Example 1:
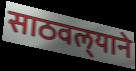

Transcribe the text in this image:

साठवल्याने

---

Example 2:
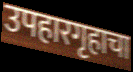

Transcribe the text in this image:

उपहारगृहाचा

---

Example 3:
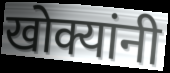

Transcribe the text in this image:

खोक्यांनी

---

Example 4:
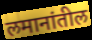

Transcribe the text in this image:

लमानांतील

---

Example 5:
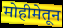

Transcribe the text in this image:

मोहीमेतून